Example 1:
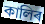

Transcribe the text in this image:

কালিৰ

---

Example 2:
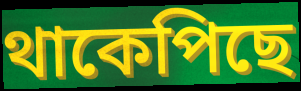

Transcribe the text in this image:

থাকেপিছে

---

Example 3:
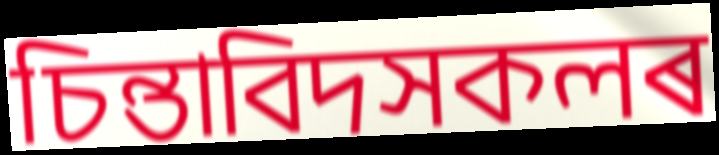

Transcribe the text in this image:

চিন্তাবিদসকলৰ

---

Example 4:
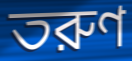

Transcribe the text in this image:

তৰুণ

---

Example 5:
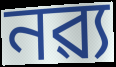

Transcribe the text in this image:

নৱ্য